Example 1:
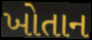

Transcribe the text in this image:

ખોતાન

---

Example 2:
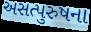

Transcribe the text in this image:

અસત્પુરુષના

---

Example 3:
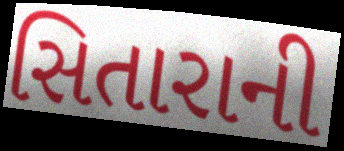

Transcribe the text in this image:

સિતારાની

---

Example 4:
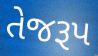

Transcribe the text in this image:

તેજરૂપ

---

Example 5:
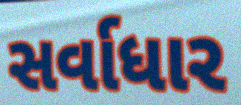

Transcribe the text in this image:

સર્વાધાર